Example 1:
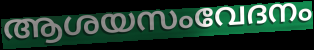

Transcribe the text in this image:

ആശയസംവേദനം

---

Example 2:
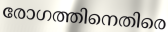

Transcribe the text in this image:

രോഗത്തിനെതിരെ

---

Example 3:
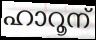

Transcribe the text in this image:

ഹാറൂന്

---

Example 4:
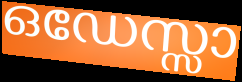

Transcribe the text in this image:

ഒഡേസ്സാ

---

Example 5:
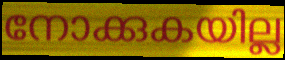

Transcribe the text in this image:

നോക്കുകയില്ല